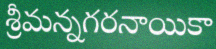
శ్రీమన్నగరనాయికా